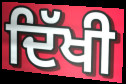
ਦਿੱਖੀ